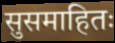
सुसमाहितः